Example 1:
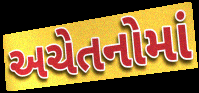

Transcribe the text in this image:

અચેતનોમાં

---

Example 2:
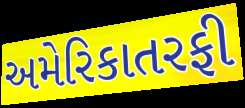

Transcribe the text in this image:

અમેરિકાતરફી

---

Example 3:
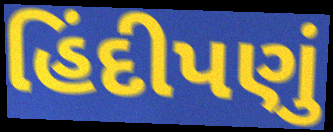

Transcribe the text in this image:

હિંદીપણું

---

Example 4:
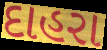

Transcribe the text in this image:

દાહરા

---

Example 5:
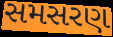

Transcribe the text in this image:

સમસરણ